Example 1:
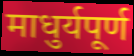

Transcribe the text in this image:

माधुर्यपूर्ण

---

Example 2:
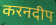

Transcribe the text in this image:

करनदीप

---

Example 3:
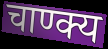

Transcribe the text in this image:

चाण्क्य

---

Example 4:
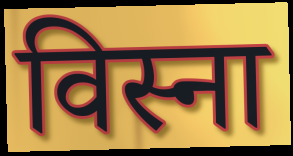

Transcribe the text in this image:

विस्ना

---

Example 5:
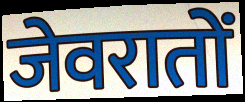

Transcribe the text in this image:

जेवरातों